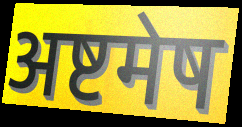
अष्टमेष